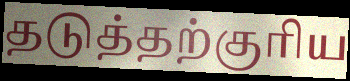
தடுத்தற்குரிய